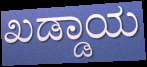
ಖಡ್ಡಾಯ